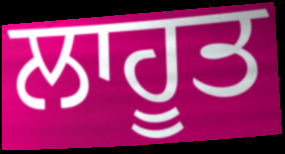
ਲਾਹੂਤ